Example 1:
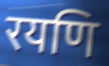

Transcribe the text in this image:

रयणि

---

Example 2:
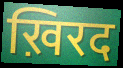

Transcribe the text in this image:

ख़िरद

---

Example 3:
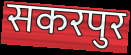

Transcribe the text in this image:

सकरपुर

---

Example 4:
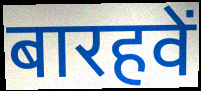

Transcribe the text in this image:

बारहवें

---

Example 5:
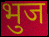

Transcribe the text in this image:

भुज